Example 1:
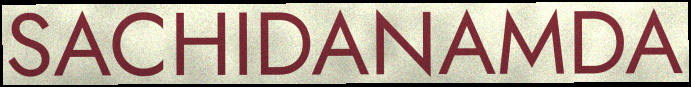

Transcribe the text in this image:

SACHIDANAMDA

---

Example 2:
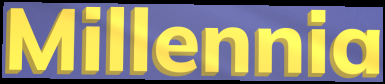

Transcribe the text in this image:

Millennia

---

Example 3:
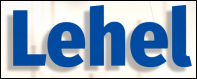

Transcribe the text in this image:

Lehel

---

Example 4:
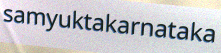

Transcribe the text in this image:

samyuktakarnataka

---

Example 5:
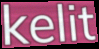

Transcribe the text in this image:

kelit